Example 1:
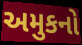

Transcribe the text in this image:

અમુકનો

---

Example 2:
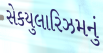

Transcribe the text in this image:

સેકયુલારિઝમનું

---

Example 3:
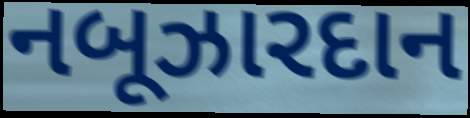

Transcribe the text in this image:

નબૂઝારદાન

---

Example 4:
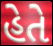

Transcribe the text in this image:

હેતે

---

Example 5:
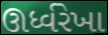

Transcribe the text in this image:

ઊર્ધ્વરેખા